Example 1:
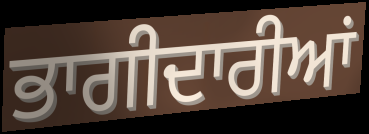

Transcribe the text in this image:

ਭਾਗੀਦਾਰੀਆਂ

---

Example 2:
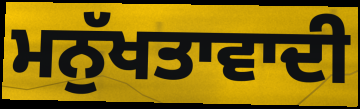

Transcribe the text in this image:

ਮਨੁੱਖਤਾਵਾਦੀ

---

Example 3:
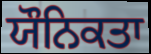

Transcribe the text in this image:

ਯੌਨਿਕਤਾ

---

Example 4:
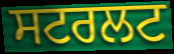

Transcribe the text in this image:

ਸਟਰਲਟ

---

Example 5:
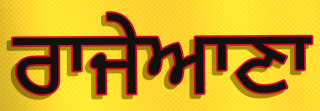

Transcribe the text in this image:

ਰਾਜੇਆਣਾ